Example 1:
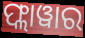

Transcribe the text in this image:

ଫ୍ଲାୱାର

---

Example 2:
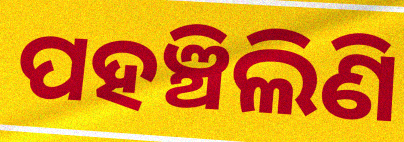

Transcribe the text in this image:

ପହଞ୍ଚିଲିଣି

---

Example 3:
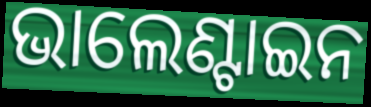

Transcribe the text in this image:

ଭାଲେଣ୍ଟାଇନ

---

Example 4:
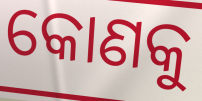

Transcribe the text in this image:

କୋଣକୁ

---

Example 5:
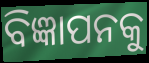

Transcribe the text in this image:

ବିଜ୍ଞାପନକୁ